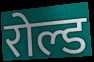
रोल्ड